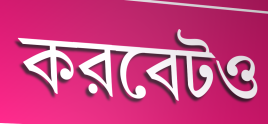
করবেটও